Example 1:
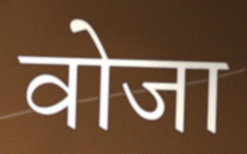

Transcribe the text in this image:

वोजा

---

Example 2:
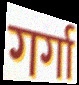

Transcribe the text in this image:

गर्गा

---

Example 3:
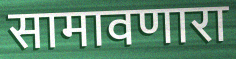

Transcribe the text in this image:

सामावणारा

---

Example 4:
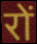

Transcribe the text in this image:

रों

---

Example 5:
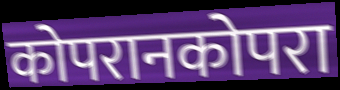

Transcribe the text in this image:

कोपरानकोपरा